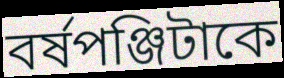
বর্ষপঞ্জিটাকে